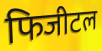
फिजीटल